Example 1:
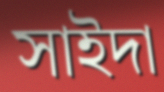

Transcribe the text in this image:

সাইদা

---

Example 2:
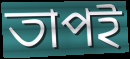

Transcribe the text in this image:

তাপই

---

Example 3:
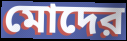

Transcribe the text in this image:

মোদের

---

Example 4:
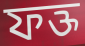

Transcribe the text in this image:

ফক্ত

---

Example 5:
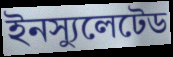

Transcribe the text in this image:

ইনস্যুলেটেড